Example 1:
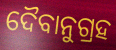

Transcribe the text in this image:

ଦୈବାନୁଗ୍ରହ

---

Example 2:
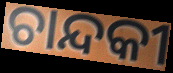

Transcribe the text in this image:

ଚାନ୍ଦକୀ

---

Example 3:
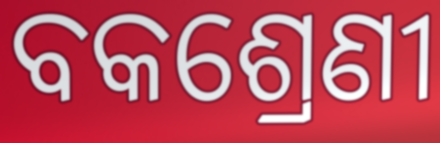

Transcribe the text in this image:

ବକଶ୍ରେଣୀ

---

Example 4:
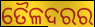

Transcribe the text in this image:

ତୈଳଦରର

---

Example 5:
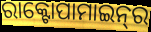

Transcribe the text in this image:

ରାକ୍ଟୋପାମାଇନ୍‌ର